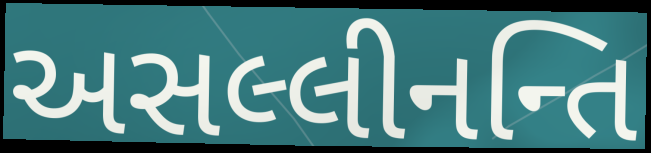
અસલ્લીનન્તિ